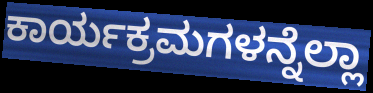
ಕಾರ್ಯಕ್ರಮಗಳನ್ನೆಲ್ಲಾ